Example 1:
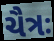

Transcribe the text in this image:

ચૈત્રઃ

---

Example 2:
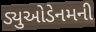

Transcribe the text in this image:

ડ્યુઓડેનમની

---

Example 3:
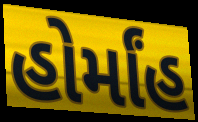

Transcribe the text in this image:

હોર્માંહ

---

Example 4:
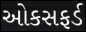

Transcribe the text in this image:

ઓકસફર્ડ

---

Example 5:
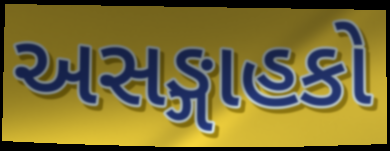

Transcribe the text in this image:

અસઙ્ગાહકો